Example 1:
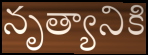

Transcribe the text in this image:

నృత్యానికి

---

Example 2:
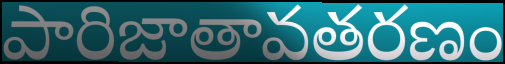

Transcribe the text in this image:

పారిజాతావతరణం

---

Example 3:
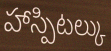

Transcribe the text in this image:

హాస్పిటల్కు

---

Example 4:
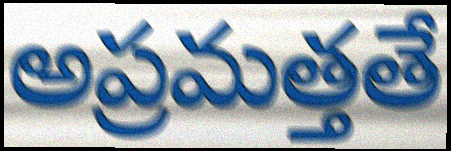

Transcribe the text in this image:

అప్రమత్తతే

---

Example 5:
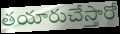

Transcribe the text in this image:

తయారుచేస్తారో